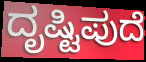
ದೃಷ್ಟಿಪುದೆ